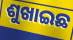
ଶୁଖାଇଛ